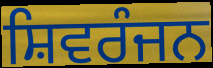
ਸ਼ਿਵਰੰਜਨ